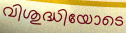
വിശുദ്ധിയോടെ